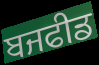
ਬਜਫੀਡ